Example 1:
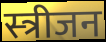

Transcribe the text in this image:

स्त्रीजन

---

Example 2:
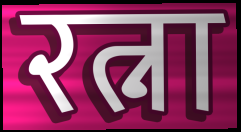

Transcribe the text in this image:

रत्ना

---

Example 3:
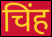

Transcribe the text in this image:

चिंह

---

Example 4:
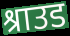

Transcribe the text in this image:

श्राउड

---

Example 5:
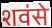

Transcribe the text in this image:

शव॑से